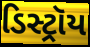
ડિસ્ટ્રૉય